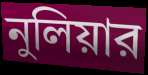
নুলিয়ার